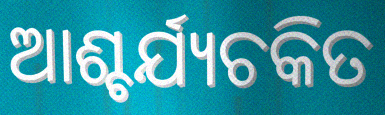
ଆଶ୍ଚର୍ଯ୍ୟଚକିତ